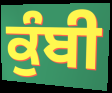
ਕੁੰਬੀ